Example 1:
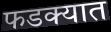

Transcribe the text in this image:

फडक्‍यात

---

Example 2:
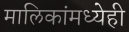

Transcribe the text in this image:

मालिकांमध्येही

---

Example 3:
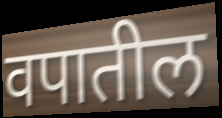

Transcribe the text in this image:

वपातील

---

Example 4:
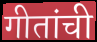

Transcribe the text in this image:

गीतांची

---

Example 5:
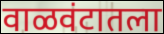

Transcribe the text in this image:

वाळवंटातला